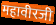
महावीरजी